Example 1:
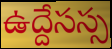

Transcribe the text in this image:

ఉద్దేసస్స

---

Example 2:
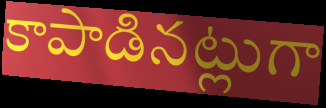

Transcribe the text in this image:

కాపాడినట్లుగా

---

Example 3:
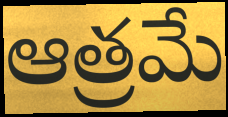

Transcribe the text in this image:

ఆత్రమే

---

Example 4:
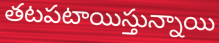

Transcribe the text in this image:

తటపటాయిస్తున్నాయి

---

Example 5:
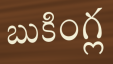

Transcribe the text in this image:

బుకింగ్ల